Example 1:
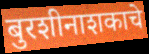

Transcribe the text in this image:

बुरशीनाशकाचे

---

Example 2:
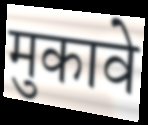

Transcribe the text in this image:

मुकावे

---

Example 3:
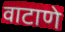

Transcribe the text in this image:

वाटाणे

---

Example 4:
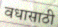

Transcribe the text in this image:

वधासाठी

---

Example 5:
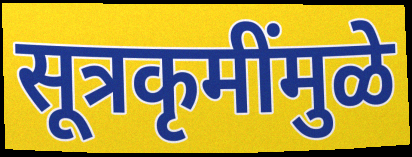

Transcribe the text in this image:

सूत्रकृमींमुळे